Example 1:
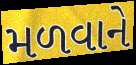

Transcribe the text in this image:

મળવાને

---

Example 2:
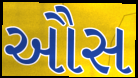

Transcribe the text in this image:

ઔસ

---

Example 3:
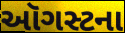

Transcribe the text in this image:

ઑગસ્ટના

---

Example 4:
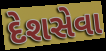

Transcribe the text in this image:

દેશસેવા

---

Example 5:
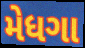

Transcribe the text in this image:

મેધગા